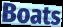
Boats